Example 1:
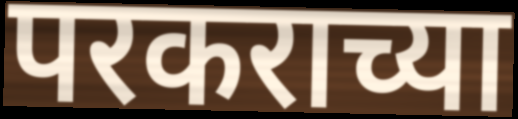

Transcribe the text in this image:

परकराच्या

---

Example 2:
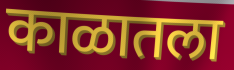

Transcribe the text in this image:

काळातला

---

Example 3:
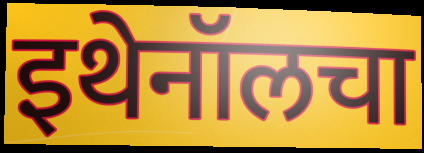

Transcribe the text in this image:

इथेनॉलचा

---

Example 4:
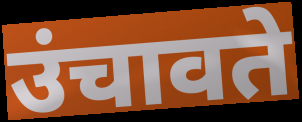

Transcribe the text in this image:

उंचावते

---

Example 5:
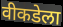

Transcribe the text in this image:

वीकडेला